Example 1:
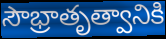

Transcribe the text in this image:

సౌభ్రాతృత్వానికి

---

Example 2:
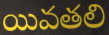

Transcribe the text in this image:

యివతలి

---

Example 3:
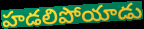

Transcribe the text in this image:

హడలిపోయాడు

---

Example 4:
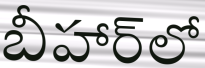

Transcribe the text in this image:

బీహార్‌లో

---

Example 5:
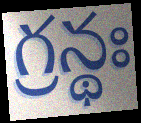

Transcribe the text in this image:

గ్రన్థః